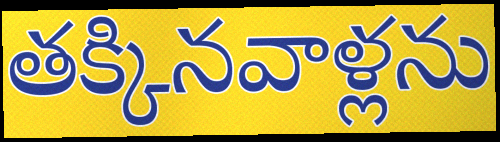
తక్కినవాళ్లను